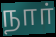
நார்